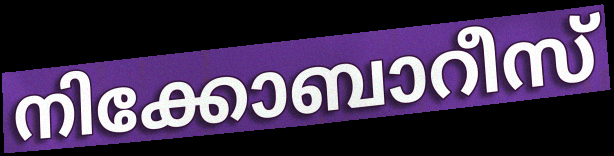
നിക്കോബാറീസ്